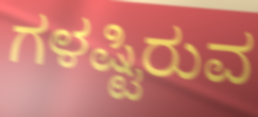
ಗಳಷ್ಟಿರುವ